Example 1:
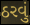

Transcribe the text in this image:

ઠરવું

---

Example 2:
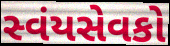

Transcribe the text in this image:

સ્વંયસેવકો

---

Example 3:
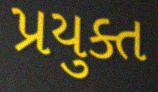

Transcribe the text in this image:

પ્રયુક્ત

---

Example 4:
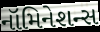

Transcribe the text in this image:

નૉમિનેશન્સ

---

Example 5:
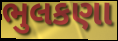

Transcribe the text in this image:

ભુલકણા